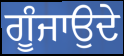
ਗੂੰਜਾਉਦੇ